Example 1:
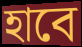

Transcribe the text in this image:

হাবে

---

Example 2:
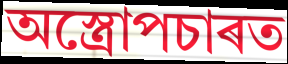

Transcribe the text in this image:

অস্ত্ৰোপচাৰত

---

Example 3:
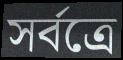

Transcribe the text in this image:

সৰ্বত্ৰে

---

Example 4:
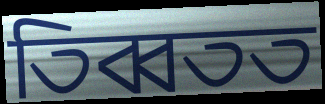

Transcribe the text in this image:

তিব্বতত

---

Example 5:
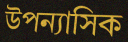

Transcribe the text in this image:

উপন্যাসিক